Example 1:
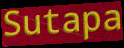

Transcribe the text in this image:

Sutapa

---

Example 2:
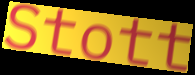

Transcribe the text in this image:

Stott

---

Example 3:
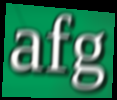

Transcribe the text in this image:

afg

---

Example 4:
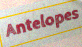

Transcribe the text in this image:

Antelopes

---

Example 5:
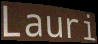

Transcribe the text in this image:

Lauri